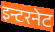
इन्टरनेट